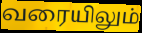
வரையிலும்